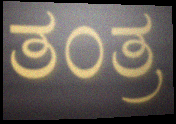
ತಂತ್ರ